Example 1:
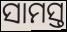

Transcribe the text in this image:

ସାମସ୍ତ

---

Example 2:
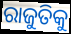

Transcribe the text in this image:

ରାଜୁତିକୁ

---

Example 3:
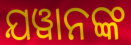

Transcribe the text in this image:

ଯୱାନଙ୍କ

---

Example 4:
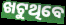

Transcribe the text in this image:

ଖଟୁଥିବେ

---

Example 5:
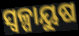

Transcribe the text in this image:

ସ୍ୱଳ୍ପାୟୁଷ